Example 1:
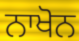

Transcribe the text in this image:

ਨਾਖੋਨ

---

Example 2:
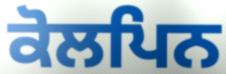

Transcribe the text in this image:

ਕੋਲਪਿਨ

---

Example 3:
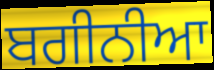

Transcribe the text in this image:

ਬਗੀਨੀਆ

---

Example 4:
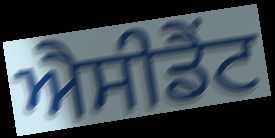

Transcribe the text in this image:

ਐਸੀਡੈਂਟ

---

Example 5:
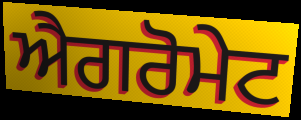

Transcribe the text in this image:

ਐਗਰੋਮੇਟ